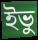
ইভু